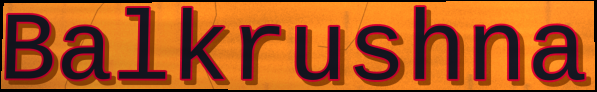
Balkrushna